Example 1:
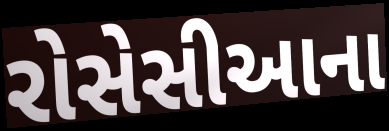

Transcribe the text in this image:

રોસેસીઆના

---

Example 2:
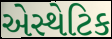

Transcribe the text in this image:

એસ્થેટિક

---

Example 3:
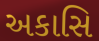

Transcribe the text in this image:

અકાસિ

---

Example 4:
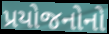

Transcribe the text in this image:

પ્રયોજનોનો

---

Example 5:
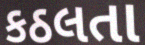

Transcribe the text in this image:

કઠલતા